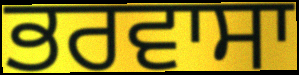
ਭਰਵਾਸਾ